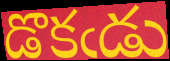
డొకఁడు